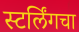
स्टर्लिंगचा